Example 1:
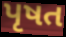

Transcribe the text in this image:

પૃષત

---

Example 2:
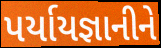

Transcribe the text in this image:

પર્યાયજ્ઞાનીને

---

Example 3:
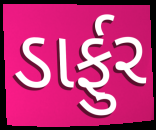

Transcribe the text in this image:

ડાર્ફુર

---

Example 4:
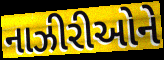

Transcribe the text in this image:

નાઝીરીઓને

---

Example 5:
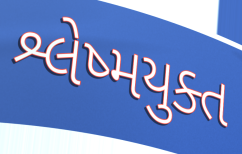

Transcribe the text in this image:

શ્લેષ્મયુક્ત